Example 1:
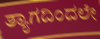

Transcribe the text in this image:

ತ್ಯಾಗದಿಂದಲೇ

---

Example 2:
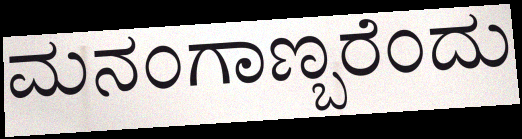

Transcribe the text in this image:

ಮನಂಗಾಣ್ಬರೆಂದು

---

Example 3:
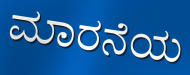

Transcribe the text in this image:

ಮಾರನೆಯ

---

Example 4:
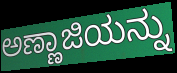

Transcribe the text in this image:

ಅಣ್ಣಾಜಿಯನ್ನು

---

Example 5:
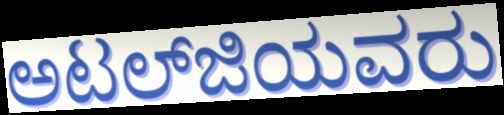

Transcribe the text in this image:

ಅಟಲ್‍ಜಿಯವರು